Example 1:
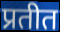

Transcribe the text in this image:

प्रतीत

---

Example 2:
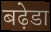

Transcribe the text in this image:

बढ़ेडा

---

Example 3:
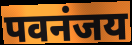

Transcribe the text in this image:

पवनंजय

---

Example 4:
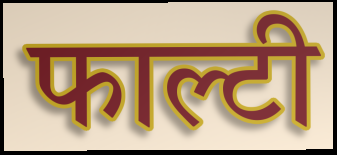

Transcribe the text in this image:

फाल्टी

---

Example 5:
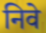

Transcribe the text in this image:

निवे